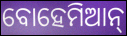
ବୋହେମିଆନ୍